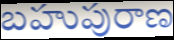
బహుపురాణ